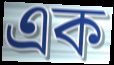
এক